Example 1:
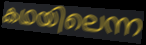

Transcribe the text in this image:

കഥയിലെന്ന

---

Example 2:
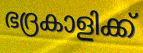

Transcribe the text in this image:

ഭദ്രകാളിക്ക്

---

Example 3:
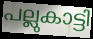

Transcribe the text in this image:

പല്ലുകാട്ടി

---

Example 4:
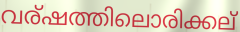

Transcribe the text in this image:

വര്ഷത്തിലൊരിക്കല്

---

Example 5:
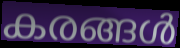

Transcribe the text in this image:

കരങ്ങൾ